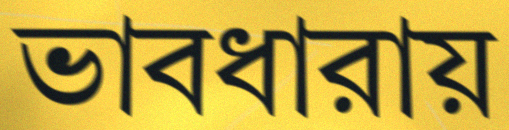
ভাবধারায়